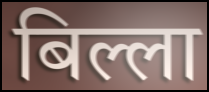
बिल्ला